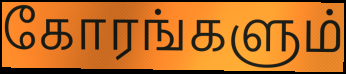
கோரங்களும்